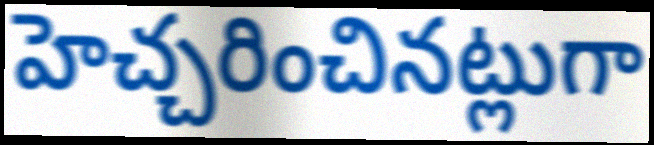
హెచ్చరించినట్లుగా